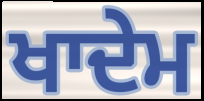
ਖਾਦੇਮ